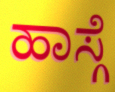
ಹಾಸ್ಗೆ